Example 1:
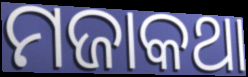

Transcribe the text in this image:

ମଜାକଥା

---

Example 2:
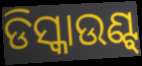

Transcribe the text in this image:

ଡିସ୍କାଉଣ୍ଟ୍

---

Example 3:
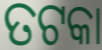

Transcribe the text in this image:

ତଟକା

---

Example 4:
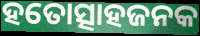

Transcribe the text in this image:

ହତୋତ୍ସାହଜନକ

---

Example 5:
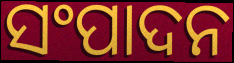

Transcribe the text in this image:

ସଂପାଦନ